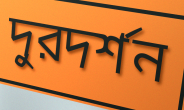
দুরদর্শন